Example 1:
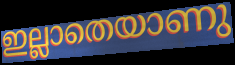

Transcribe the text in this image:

ഇല്ലാതെയാണു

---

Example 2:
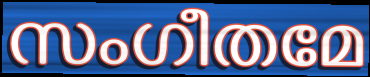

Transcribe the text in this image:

സംഗീതമേ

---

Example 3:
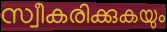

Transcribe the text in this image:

സ്വീകരിക്കുകയും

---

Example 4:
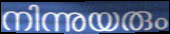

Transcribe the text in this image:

നിന്നുയരും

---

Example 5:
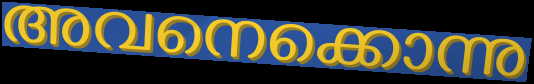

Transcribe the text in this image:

അവനെക്കൊന്നു